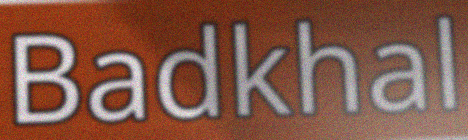
Badkhal